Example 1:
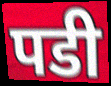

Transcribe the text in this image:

पडी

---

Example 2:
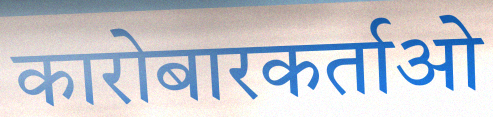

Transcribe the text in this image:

कारोबारकर्ताओ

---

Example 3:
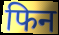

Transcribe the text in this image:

फिन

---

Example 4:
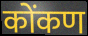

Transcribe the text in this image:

कोंकण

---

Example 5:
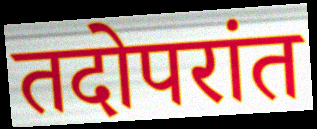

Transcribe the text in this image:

तदोपरांत